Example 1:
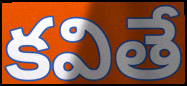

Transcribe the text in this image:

కవితే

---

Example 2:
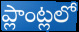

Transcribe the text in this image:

ప్లాంట్లలో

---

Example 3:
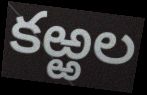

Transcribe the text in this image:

కఱ్ఱల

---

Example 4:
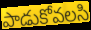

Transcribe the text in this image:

పాడుకోవలసి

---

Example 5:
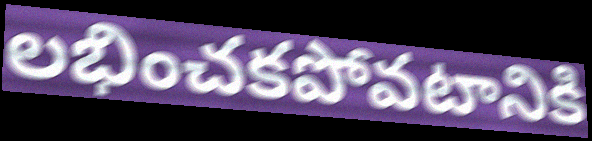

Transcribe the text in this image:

లభించకపోవటానికి